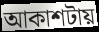
আকাশটায়